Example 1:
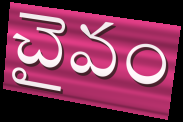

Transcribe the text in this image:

చైవం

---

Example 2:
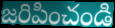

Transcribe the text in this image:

జరిపించండి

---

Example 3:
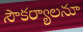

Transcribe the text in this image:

సౌకర్యాలనూ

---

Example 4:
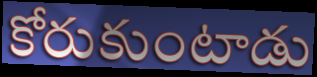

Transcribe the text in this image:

కోరుకుంటాడు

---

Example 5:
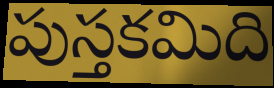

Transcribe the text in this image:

పుస్తకమిది